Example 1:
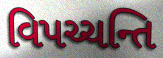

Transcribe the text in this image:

વિપચ્ચન્તિ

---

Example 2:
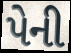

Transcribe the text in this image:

પેની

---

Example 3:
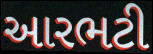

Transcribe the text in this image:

આરભટી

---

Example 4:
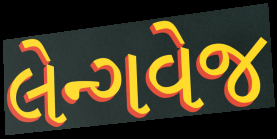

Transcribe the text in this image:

લેન્ગવેજ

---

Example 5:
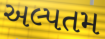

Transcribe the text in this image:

અલ્પતમ